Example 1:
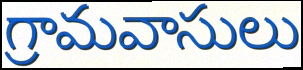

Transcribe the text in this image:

గ్రామవాసులు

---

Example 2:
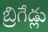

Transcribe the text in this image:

బ్రిగేడ్లు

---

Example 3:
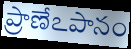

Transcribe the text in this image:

ప్రాణేఽపానం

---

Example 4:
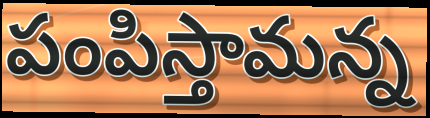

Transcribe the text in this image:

పంపిస్తామన్న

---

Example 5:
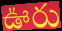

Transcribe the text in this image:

ఊరు